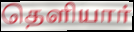
தெளியார்